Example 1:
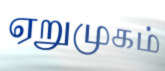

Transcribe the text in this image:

ஏறுமுகம்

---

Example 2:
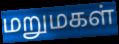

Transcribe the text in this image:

மறுமகள்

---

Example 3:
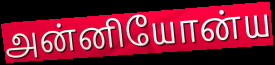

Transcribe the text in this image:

அன்னியோன்ய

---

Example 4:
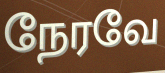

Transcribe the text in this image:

நேரவே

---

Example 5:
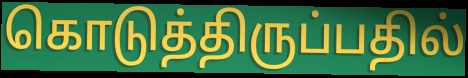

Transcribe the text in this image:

கொடுத்திருப்பதில்